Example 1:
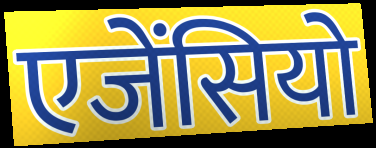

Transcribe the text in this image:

एजेंसियो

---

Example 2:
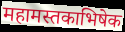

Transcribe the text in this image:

महामस्तकाभिषेक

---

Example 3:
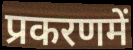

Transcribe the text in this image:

प्रकरणमें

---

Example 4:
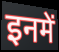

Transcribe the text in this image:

इनमें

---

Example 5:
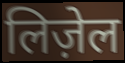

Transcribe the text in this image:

लिज़ेल